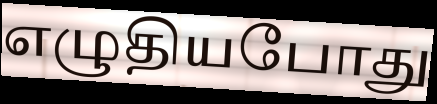
எழுதியபோது